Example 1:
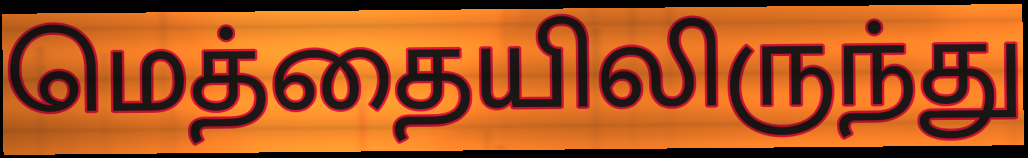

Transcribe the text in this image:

மெத்தையிலிருந்து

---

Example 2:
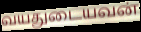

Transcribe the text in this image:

வயதுடையவன்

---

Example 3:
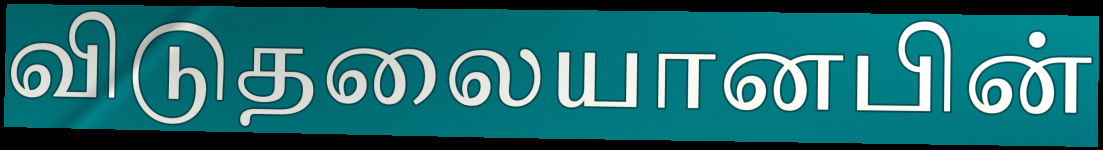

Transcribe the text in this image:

விடுதலையானபின்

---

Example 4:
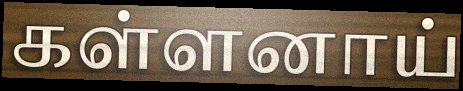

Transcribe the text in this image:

கள்ளனாய்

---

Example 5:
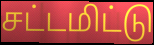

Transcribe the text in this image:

சட்டமிட்டு